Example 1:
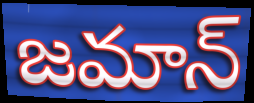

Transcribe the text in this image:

జమాన్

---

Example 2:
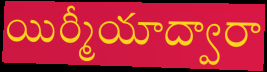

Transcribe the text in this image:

యిర్మీయాద్వారా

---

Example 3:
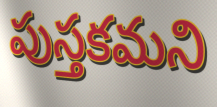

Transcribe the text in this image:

పుస్తకమని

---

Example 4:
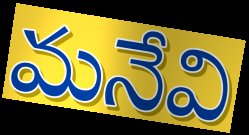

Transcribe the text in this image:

మనేవి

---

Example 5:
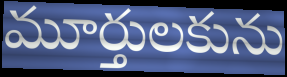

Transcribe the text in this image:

మూర్తులకును